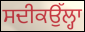
ਸਦੀਕਉੱਲ੍ਹਾ